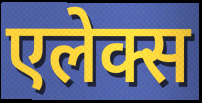
एलेक्स